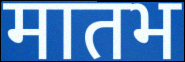
मातभ